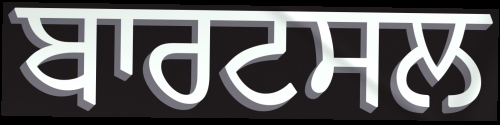
ਬਾਰਟਸਲ